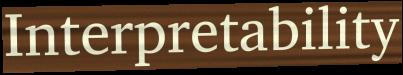
Interpretability